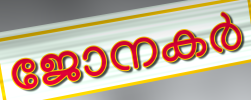
ജോനകർ